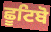
ਛੂਟਿਬੋ